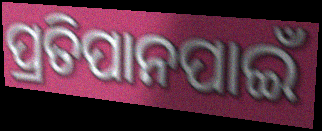
ପ୍ରତିପାନପାଇଁ